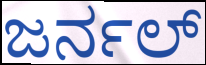
ಜರ್ನಲ್